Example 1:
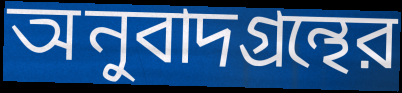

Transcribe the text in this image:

অনুবাদগ্রন্থের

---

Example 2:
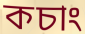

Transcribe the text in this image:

কচাং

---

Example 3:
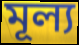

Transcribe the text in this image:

মূল্য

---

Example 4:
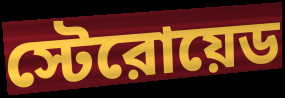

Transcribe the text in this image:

স্টেরোয়েড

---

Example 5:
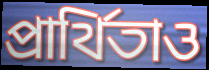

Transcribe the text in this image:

প্রার্থিতাও